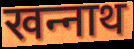
खन्नाथ